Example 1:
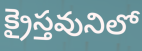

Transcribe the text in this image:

క్రైస్తవునిలో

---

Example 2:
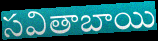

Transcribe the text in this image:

సవితాబాయి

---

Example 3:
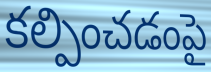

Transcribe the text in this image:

కల్పించడంపై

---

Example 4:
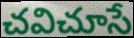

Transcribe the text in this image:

చవిచూసే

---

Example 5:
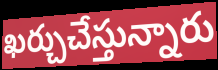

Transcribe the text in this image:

ఖర్చుచేస్తున్నారు